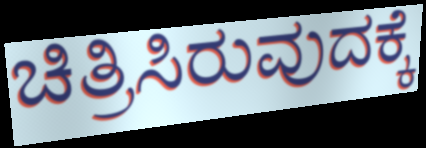
ಚಿತ್ರಿಸಿರುವುದಕ್ಕೆ